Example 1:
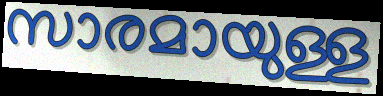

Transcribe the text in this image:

സാരമായുള്ള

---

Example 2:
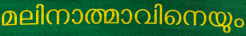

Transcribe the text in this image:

മലിനാത്മാവിനെയും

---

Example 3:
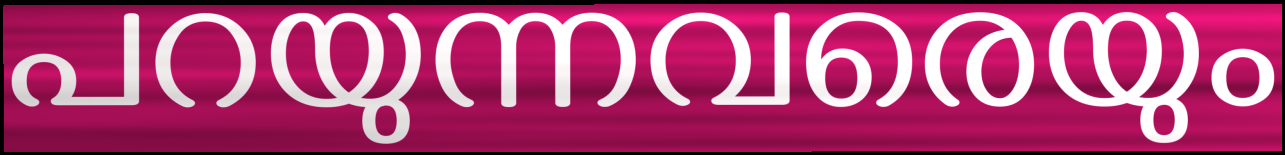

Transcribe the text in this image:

പറയുന്നവരെയും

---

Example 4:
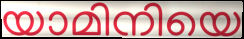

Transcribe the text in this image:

യാമിനിയെ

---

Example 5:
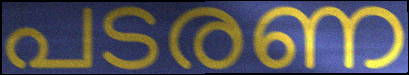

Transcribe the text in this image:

പടരണ